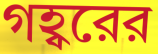
গহ্বরের